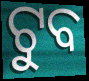
ଟୁବ